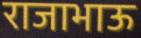
राजाभाऊ